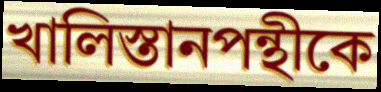
খালিস্তানপন্থীকে